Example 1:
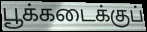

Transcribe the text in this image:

பூக்கடைக்குப்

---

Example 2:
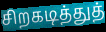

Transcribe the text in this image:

சிறகடித்துத்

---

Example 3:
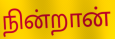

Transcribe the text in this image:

நின்றான்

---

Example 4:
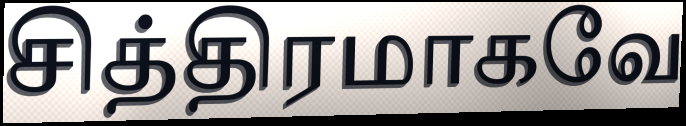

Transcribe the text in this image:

சித்திரமாகவே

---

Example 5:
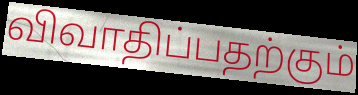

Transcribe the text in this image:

விவாதிப்பதற்கும்